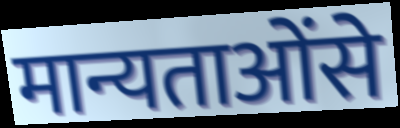
मान्यताओंसे